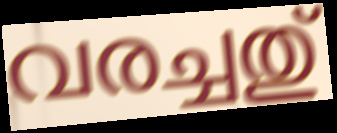
വരച്ചതു്